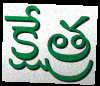
క్షేత్ర